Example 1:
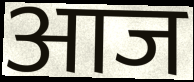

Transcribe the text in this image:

आज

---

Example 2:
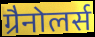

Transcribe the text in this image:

ग्रैनोलर्स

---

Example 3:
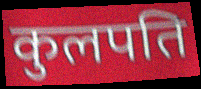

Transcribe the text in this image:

कुलपति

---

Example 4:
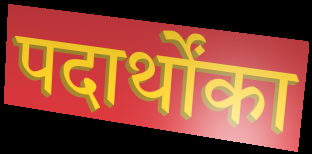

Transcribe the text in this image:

पदार्थोंका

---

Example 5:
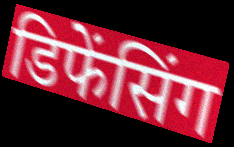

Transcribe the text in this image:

डिफेंसिंग